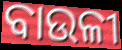
ବାଉଳୀ